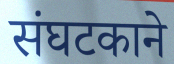
संघटकाने